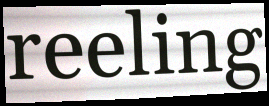
reeling